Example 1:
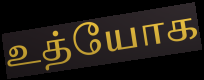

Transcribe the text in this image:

உத்யோக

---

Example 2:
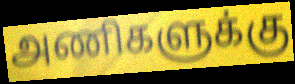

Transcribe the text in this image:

அணிகளுக்கு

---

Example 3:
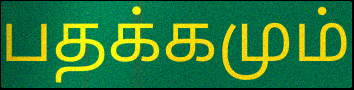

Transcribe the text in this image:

பதக்கமும்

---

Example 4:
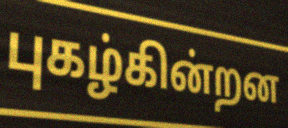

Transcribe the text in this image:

புகழ்கின்றன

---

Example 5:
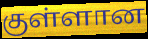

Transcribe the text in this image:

குள்ளான